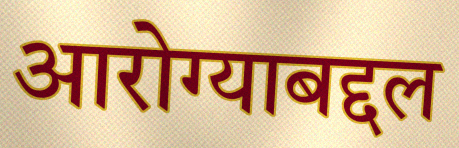
आरोग्याबद्दल